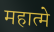
महात्मे